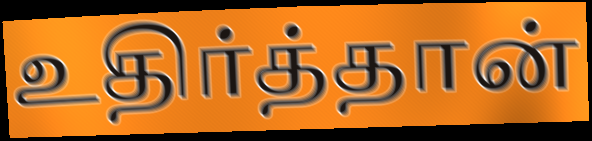
உதிர்த்தான்